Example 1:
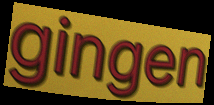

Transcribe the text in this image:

gingen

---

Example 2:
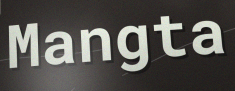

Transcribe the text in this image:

Mangta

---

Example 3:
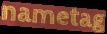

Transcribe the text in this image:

nametag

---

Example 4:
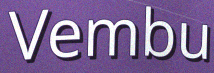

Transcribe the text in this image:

Vembu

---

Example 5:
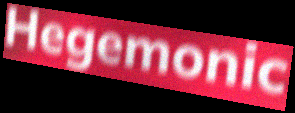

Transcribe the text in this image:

Hegemonic